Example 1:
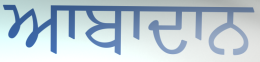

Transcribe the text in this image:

ਆਬਾਦਾਨ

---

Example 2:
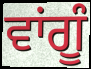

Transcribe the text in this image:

ਵਾਂਗੂੰ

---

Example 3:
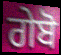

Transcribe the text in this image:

ਗੇਬੋ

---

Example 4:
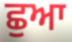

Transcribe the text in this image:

ਛੁਆ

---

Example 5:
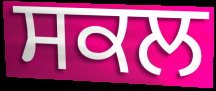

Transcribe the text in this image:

ਸਕਲ